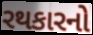
રથકારનો